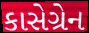
કાસેગ્રેન